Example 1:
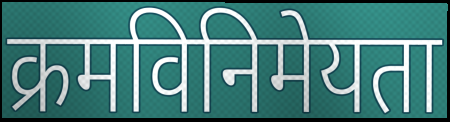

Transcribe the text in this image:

क्रमविनिमेयता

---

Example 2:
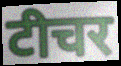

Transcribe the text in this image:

टीचर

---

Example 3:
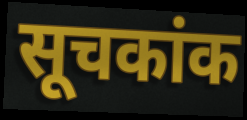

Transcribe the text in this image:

सूचकांक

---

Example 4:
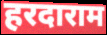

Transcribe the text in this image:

हरदाराम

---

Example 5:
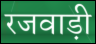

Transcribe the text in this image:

रजवाड़ी